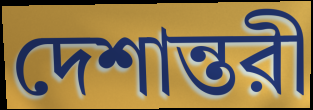
দেশান্তরী